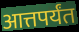
आत्तपर्यंत